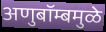
अणुबॉम्बमुळे